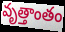
వృత్తాంతం